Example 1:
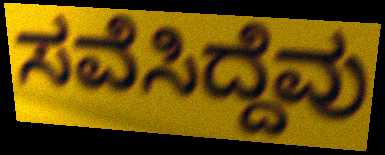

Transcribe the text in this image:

ಸವೆಸಿದ್ದೆವು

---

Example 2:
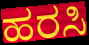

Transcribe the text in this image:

ಹರಸಿ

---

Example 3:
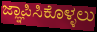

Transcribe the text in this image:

ಜ್ಞಾಪಿಸಿಕೊಳ್ಳಲು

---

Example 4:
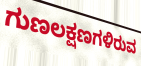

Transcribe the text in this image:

ಗುಣಲಕ್ಷಣಗಳಿರುವ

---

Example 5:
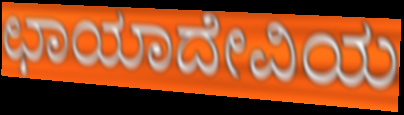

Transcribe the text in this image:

ಛಾಯಾದೇವಿಯ